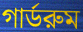
গার্ডরুম